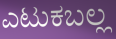
ಎಟುಕಬಲ್ಲ